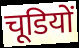
चूडियों